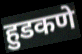
हुडकणे